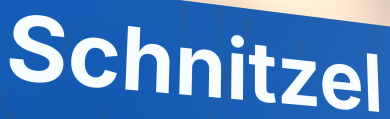
Schnitzel